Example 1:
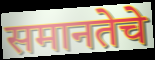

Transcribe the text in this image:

समानतेचे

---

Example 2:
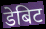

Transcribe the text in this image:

डेबिट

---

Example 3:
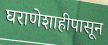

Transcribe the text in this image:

घराणेशाहीपासून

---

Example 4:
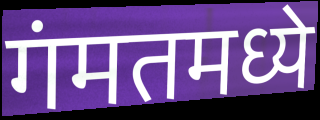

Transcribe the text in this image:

गंमतमध्ये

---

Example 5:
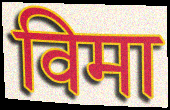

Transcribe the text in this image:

विमा